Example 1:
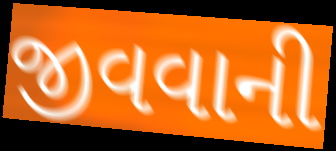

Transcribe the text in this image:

જીવવાની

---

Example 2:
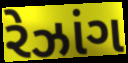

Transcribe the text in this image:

રેઝાંગ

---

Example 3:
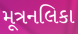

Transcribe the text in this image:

મૂત્રનલિકા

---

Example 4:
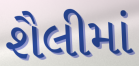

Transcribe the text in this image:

શૈલીમાં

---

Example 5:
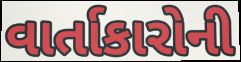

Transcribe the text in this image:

વાર્તાકારોની